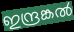
ഇന്ദ്രങ്കൽ